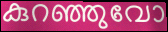
കുറഞ്ഞുവോ